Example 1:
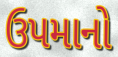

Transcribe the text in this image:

ઉપમાનો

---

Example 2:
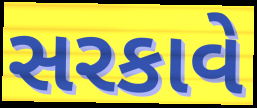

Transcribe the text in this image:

સરકાવે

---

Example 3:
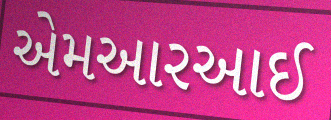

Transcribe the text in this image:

એમઆરઆઈ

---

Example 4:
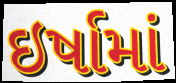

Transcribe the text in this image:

ઇર્ષામાં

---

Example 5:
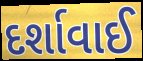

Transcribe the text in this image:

દર્શાવાઈ